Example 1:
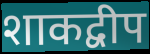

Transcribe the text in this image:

शाकद्वीप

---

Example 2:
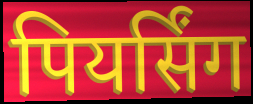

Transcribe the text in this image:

पियर्सिंग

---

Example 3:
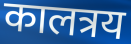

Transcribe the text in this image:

कालत्रय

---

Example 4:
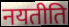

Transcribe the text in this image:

नयतीति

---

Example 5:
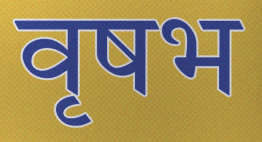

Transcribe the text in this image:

वृषभ